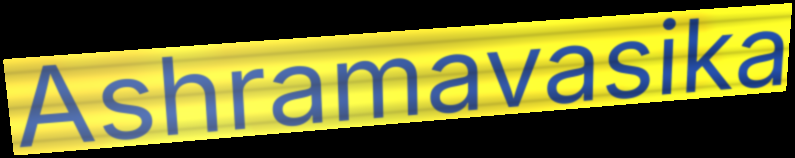
Ashramavasika